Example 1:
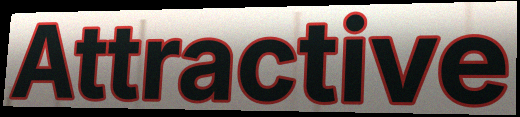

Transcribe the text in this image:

Attractive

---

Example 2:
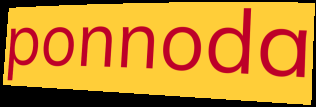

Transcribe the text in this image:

ponnoda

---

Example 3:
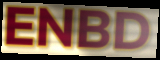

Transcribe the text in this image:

ENBD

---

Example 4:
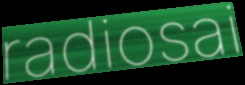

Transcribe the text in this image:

radiosai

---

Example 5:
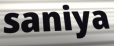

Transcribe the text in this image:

saniya